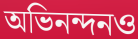
অভিনন্দনও